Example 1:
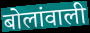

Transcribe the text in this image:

बोलांवाली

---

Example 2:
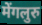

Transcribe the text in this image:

मेंगलुरु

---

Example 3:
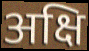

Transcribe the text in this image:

अक्षि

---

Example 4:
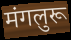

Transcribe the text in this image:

मंगलुरू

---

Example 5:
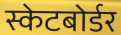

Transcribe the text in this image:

स्केटबोर्डर